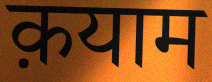
क़याम